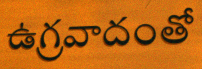
ఉగ్రవాదంతో